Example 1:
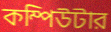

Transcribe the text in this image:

কম্পিউটার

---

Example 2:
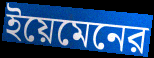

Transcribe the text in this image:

ইয়েমেনের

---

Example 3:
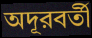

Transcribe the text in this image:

অদূরবর্তী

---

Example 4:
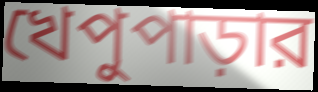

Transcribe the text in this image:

খেপুপাড়ার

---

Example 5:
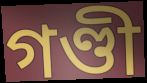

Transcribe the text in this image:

গণ্ডী